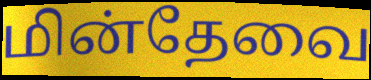
மின்தேவை